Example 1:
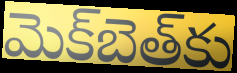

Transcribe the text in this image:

మెక్‌బెత్‌కు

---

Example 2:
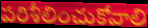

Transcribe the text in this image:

పరిశీలించుకోవాలి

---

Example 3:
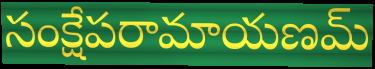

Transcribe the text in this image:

సంక్షేపరామాయణమ్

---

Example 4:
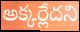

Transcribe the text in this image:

అక్కర్లేదని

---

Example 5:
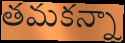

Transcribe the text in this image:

తమకన్నా